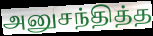
அனுசந்தித்த